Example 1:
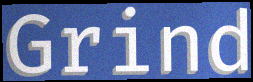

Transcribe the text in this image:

Grind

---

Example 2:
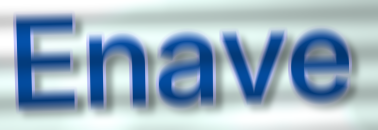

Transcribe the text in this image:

Enave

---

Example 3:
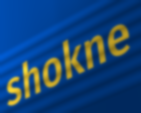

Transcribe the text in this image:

shokne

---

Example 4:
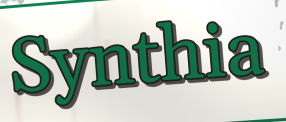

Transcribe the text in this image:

Synthia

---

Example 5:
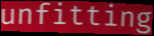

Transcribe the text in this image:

unfitting